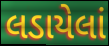
લડાયેલાં